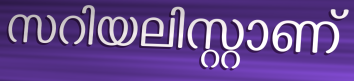
സറിയലിസ്റ്റാണ്